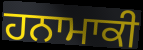
ਹਨਾਮਾਕੀ